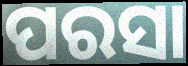
ପରସା